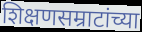
शिक्षणसम्राटांच्या